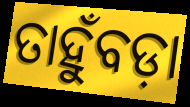
ତାହୁଁବଡ଼ା